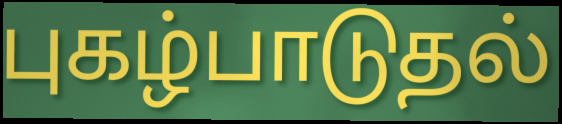
புகழ்பாடுதல்